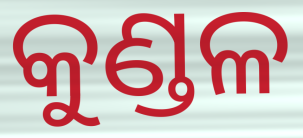
କୁଣ୍ଡଳ